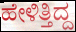
ಹೇಳಿತ್ತಿದ್ದ